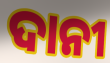
ଦାନୀ